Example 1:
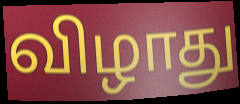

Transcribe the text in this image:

விழாது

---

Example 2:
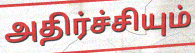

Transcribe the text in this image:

அதிர்ச்சியும்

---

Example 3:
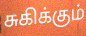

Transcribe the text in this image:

சுகிக்கும்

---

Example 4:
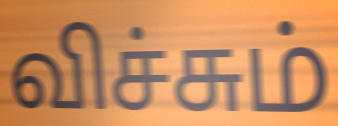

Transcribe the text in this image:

விச்சும்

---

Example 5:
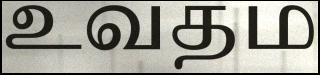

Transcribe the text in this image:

உவதம